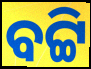
ବଟ୍ଟି